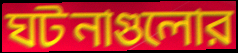
ঘটনাগুলোর